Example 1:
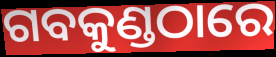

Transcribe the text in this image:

ଗବକୁଣ୍ଡଠାରେ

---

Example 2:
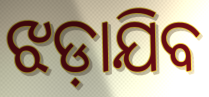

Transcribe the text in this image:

ଝଡ଼ାଯିବ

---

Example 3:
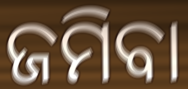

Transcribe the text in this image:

ଜମିବା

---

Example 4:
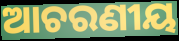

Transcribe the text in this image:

ଆଚରଣୀୟ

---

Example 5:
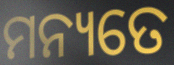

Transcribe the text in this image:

ମନ୍ୟତେ